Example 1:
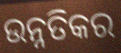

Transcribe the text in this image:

ଉନ୍ନତିକର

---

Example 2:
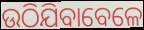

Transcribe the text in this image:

ଉଠିଯିବାବେଳେ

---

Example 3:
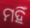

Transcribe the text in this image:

ମହିଁ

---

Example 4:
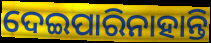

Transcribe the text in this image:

ଦେଇପାରିନାହାନ୍ତି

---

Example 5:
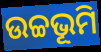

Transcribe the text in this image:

ଉଚ୍ଚଭୂମି